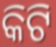
କିଟି